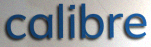
calibre